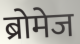
ब्रोमेज